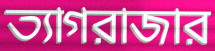
ত্যাগরাজার